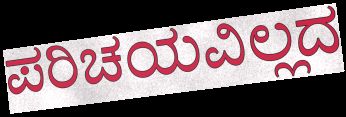
ಪರಿಚಯವಿಲ್ಲದ